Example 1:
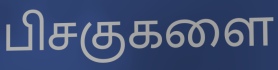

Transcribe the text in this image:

பிசகுகளை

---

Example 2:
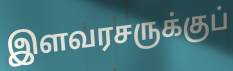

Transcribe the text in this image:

இளவரசருக்குப்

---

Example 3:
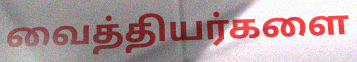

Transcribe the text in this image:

வைத்தியர்களை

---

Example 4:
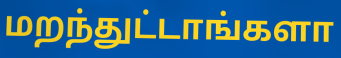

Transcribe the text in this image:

மறந்துட்டாங்களா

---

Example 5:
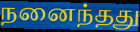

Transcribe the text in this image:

நனைந்தது